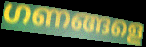
ഗണങ്ങളെ